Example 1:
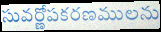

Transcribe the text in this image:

సువర్ణోపకరణములను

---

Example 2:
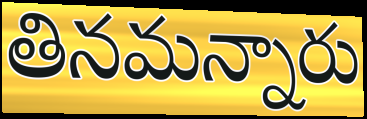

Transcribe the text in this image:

తినమన్నారు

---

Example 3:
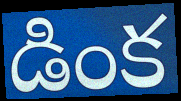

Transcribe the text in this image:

డింక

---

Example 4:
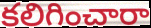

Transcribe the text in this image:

కలిగించారా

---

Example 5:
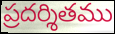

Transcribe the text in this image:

ప్రదర్శితము